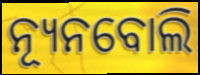
ନ୍ୟୂନବୋଲି